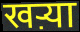
खऱ्‍या